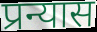
प्रन्यास